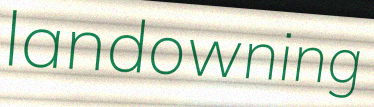
landowning